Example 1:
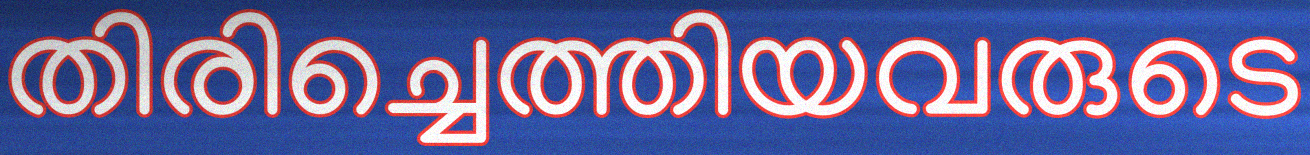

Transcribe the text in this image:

തിരിച്ചെത്തിയവരുടെ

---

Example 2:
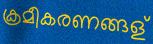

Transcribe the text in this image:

ക്രമീകരണങ്ങള്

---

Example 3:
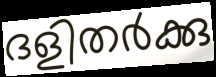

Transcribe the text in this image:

ദളിതർക്കു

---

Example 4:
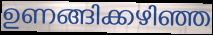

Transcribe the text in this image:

ഉണങ്ങിക്കഴിഞ്ഞ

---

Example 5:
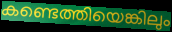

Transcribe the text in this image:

കണ്ടെത്തിയെങ്കിലും